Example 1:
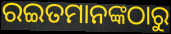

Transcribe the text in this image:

ରଇତମାନଙ୍କଠାରୁ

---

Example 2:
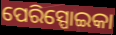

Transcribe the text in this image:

ପେରିସ୍ପୋଇକା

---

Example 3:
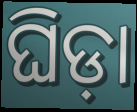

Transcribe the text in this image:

ଘିଡ଼ା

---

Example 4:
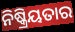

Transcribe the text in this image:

ନିଷ୍କ୍ରିୟତାର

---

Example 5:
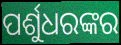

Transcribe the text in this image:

ପର୍ଶୁଧରଙ୍କର